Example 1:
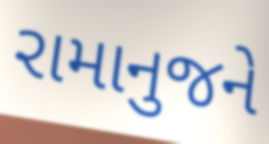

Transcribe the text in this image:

રામાનુજને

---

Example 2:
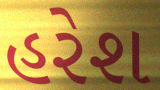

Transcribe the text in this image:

હરેશ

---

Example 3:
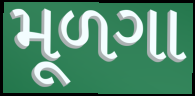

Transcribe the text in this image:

મૂળગા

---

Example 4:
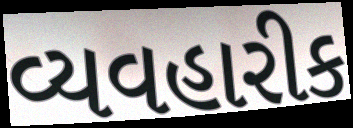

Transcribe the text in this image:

વ્યવહારીક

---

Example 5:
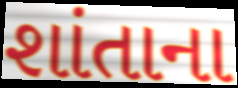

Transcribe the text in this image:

શાંતાના